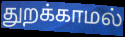
துறக்காமல்